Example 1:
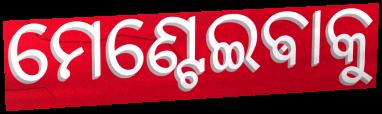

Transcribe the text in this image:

ମେଣ୍ଟେଇଵାକୁ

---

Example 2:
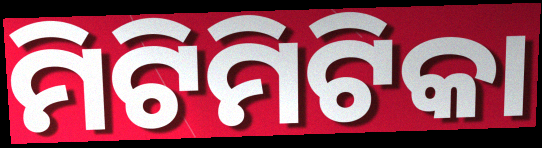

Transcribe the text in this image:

ମିଟିମିଟିକା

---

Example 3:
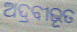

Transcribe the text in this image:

ଅଦ୍ରବୀଭୂତ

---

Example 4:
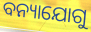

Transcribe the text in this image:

ବନ୍ୟାଯୋଗୁ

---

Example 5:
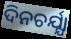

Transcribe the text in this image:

ଦିନଚର୍ଯ୍ଯା